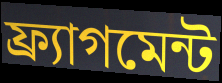
ফ্র্যাগমেন্ট